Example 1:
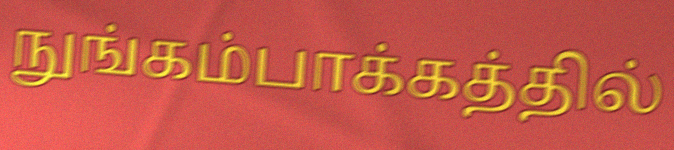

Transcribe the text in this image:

நுங்கம்பாக்கத்தில்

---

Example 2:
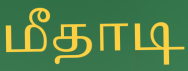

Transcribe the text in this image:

மீதாடி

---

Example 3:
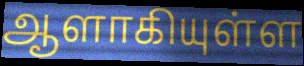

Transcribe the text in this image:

ஆளாகியுள்ள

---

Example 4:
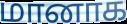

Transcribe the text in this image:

மானாக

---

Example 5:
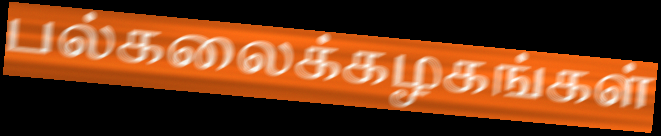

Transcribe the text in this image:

பல்கலைக்கழகங்கள்